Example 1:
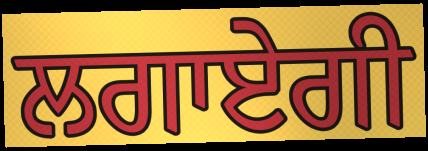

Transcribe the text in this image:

ਲਗਾਏਗੀ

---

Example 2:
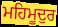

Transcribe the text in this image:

ਮਹਿਮੂਦੁਰ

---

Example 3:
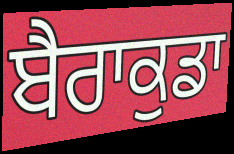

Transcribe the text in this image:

ਬੈਰਾਕੁਡਾ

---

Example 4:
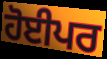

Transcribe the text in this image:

ਹੋਈਪਰ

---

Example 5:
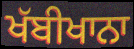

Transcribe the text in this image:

ਖੱਬੀਖਾਨਾ